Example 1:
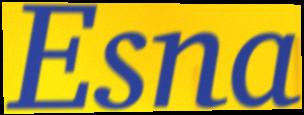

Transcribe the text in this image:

Esna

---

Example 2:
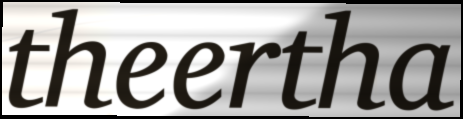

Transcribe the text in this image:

theertha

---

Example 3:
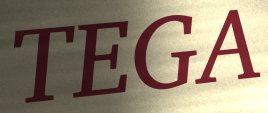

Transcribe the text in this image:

TEGA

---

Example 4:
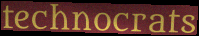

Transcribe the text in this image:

technocrats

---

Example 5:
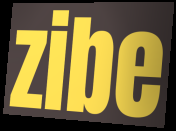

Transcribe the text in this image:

zibe